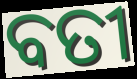
ବତୀ